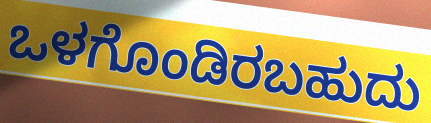
ಒಳಗೊಂಡಿರಬಹುದು